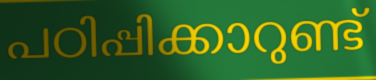
പഠിപ്പിക്കാറുണ്ട്